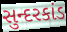
સુન્દરકાંડ